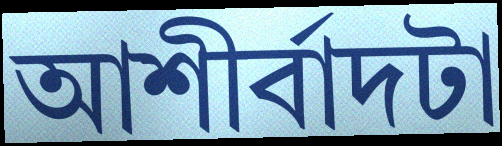
আশীর্বাদটা